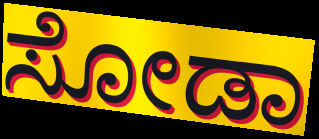
ಸೋಡಾ